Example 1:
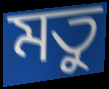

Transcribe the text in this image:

মতু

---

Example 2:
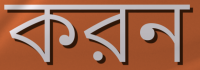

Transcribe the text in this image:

করন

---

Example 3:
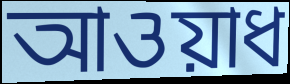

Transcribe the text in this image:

আওয়াধ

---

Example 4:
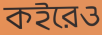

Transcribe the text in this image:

কইরেও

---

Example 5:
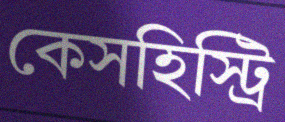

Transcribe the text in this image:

কেসহিস্ট্রি